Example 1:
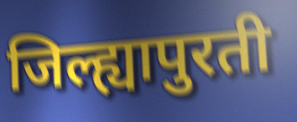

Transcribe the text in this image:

जिल्ह्यापुरती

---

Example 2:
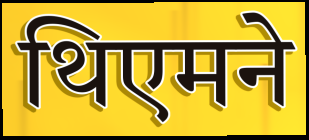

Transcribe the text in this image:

थिएमने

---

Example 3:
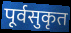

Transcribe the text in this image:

पूर्वसुकृत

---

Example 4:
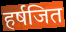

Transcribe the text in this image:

हर्षजित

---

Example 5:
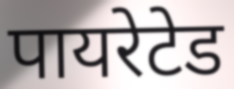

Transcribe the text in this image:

पायरेटेड